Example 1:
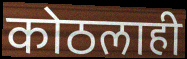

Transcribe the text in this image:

कोठलाही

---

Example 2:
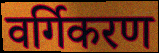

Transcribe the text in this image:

वर्गिकरण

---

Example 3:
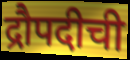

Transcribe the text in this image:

द्रौपदीची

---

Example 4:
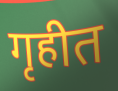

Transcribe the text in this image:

गृहीत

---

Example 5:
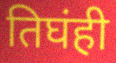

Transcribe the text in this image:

तिघंही